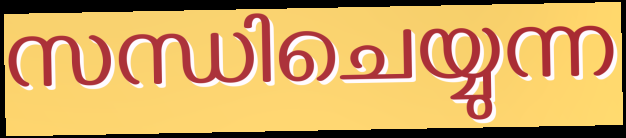
സന്ധിചെയ്യുന്ന